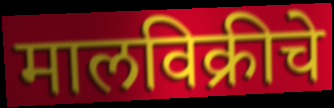
मालविक्रीचे